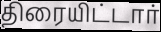
திரையிட்டார்